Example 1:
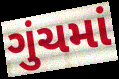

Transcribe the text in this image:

ગુંચમાં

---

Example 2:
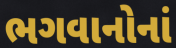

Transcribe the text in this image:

ભગવાનોનાં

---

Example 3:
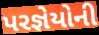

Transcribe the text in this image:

પરજ્ઞેયોની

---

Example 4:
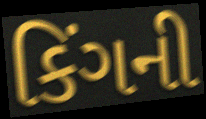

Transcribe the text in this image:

કિંગની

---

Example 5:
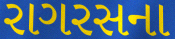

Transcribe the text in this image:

રાગરસના